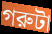
গরুটা